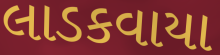
લાડકવાયા